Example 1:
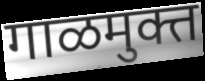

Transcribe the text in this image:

गाळमुक्त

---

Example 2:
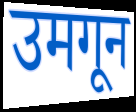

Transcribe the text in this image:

उमगून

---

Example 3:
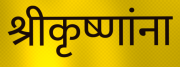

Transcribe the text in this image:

श्रीकृष्णांना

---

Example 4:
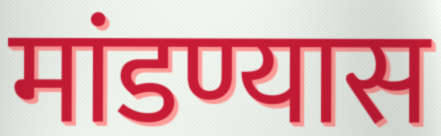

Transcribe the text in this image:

मांडण्यास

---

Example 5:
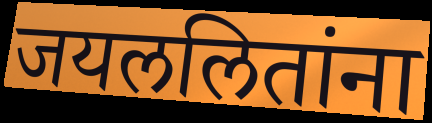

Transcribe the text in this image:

जयललितांना